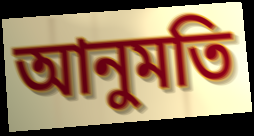
আনুমতি